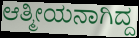
ಆತ್ಮೀಯನಾಗಿದ್ದ